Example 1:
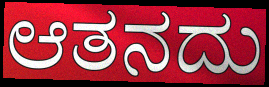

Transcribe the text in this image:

ಆತನದು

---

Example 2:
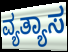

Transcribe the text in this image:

ವ್ಯತ್ಯಾಸ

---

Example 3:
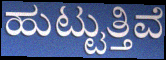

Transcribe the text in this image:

ಹುಟ್ಟುತ್ತಿವೆ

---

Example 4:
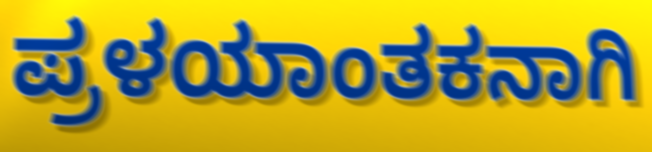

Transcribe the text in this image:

ಪ್ರಳಯಾಂತಕನಾಗಿ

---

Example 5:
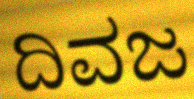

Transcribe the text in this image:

ದಿವಜ